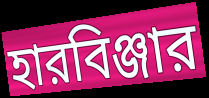
হারবিঞ্জার